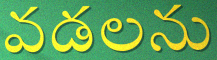
వడలను